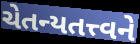
ચેતન્યતત્ત્વને